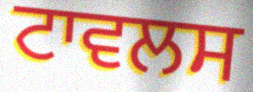
ਟਾਵਲਸ